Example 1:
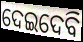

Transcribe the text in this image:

ଦେଇଦେବି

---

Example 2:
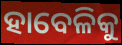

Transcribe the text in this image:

ହାବେଳିକୁ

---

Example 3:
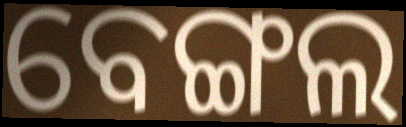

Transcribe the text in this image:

ବେଙ୍ଗଲ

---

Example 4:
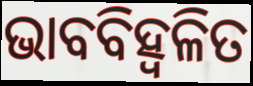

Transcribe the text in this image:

ଭାବବିହ୍ବଳିତ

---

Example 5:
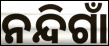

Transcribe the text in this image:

ନନ୍ଦିଗାଁ